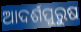
ଆଦର୍ଶପୁରୁଷ